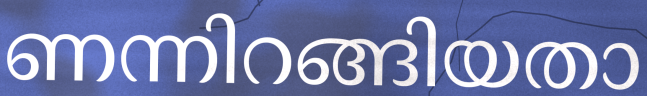
ണന്നിറങ്ങിയതാ